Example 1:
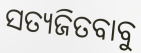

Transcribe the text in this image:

ସତ୍ୟଜିତବାବୁ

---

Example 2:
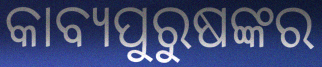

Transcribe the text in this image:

କାବ୍ୟପୁରୁଷଙ୍କର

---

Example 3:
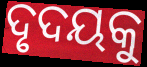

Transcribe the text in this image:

ଦୃଦୟକୁ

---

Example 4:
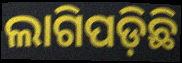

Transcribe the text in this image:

ଲାଗିପଡ଼ିଛି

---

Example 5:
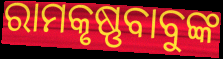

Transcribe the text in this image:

ରାମକୃଷ୍ଣବାବୁଙ୍କ